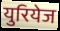
युरियेज